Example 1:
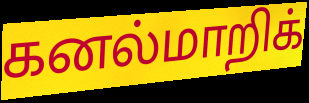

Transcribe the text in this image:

கனல்மாறிக்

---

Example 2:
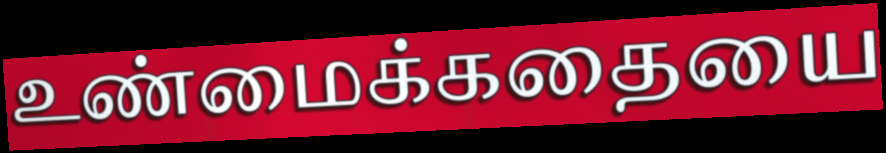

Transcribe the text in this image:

உண்மைக்கதையை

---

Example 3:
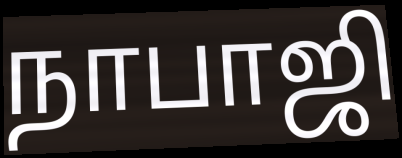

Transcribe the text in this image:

நாபாஜி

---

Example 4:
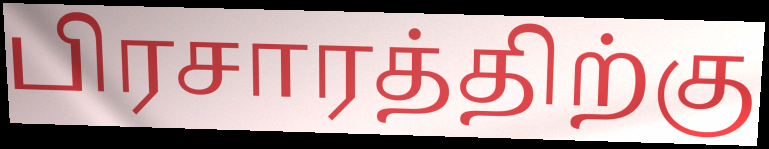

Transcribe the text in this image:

பிரசாரத்திற்கு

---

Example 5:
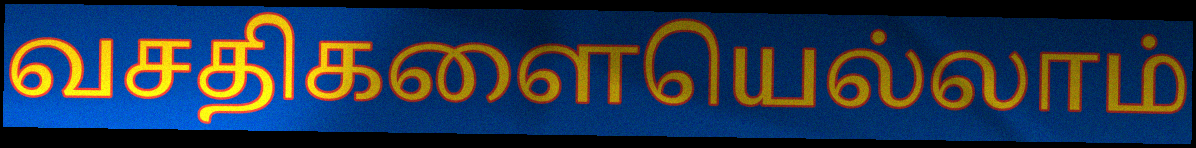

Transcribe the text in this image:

வசதிகளையெல்லாம்